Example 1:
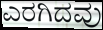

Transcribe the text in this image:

ಎರಗಿದವು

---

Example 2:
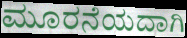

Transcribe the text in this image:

ಮೂರನೆಯದಾಗಿ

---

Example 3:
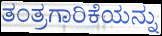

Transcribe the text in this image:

ತಂತ್ರಗಾರಿಕೆಯನ್ನು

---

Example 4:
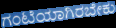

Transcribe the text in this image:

ಗಂಟೆಯಾಗಿರಬೇಕು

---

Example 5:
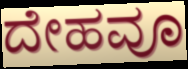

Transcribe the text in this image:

ದೇಹವೂ